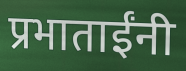
प्रभाताईंनी